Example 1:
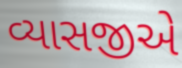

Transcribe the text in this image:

વ્યાસજીએ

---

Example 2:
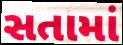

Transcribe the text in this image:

સતામાં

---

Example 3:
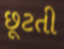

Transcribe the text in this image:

છૂટતી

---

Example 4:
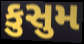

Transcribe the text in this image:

કુસુમ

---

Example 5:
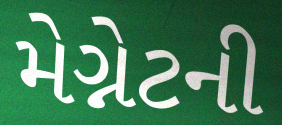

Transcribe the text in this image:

મેગ્નેટની